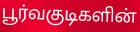
பூர்வகுடிகளின்